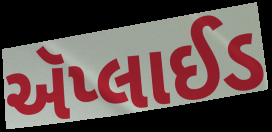
ઍપ્લાઈડ